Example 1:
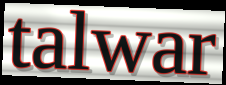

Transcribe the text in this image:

talwar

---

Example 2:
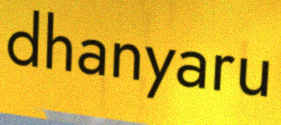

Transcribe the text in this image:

dhanyaru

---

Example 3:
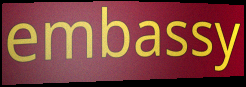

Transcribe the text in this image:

embassy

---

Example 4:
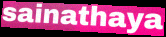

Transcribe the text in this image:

sainathaya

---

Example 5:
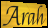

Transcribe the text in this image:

Arah